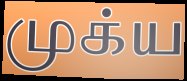
முக்ய